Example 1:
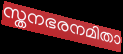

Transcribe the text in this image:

സ്തനഭരനമിതാ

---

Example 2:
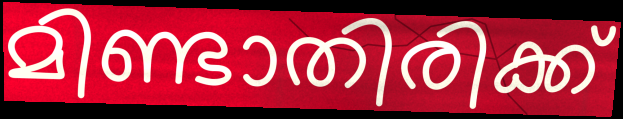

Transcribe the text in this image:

മിണ്ടാതിരിക്ക്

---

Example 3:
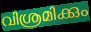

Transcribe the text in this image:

വിശ്രമിക്കും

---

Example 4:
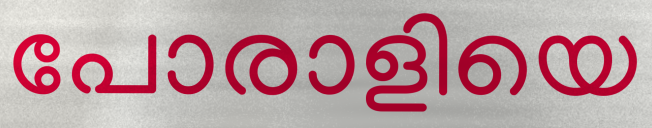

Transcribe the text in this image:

പോരാളിയെ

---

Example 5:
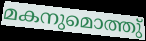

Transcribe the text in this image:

മകനുമൊത്തു്